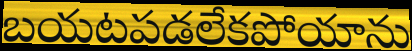
బయటపడలేకపోయాను